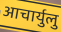
आचार्युलु